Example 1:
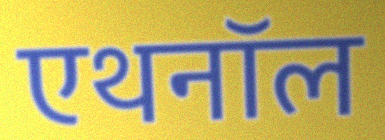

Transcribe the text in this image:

एथनॉल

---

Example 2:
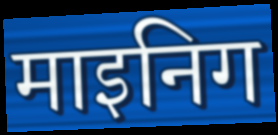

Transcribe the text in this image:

माइनिग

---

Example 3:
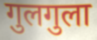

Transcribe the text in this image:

गुलगुला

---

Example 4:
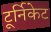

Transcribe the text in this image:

टूर्निकेट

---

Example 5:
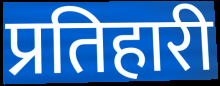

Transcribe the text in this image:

प्रतिहारी